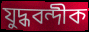
যুদ্ধবন্দীক